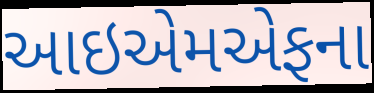
આઇએમએફના